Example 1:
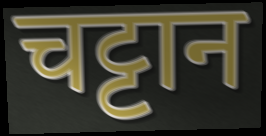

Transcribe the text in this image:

चट्टान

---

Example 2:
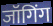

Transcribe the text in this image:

जॉगिंग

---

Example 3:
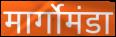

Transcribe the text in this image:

मार्गोमंडा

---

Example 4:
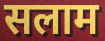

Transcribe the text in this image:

सलाम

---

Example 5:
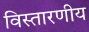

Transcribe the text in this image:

विस्तारणीय